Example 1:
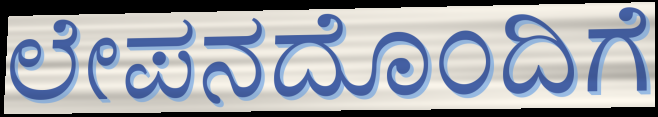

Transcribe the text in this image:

ಲೇಪನದೊಂದಿಗೆ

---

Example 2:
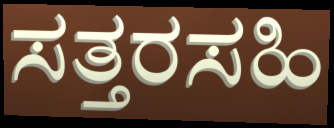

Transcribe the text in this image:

ಸತ್ತರಸಹಿ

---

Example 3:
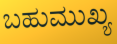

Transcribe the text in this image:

ಬಹುಮುಖ್ಯ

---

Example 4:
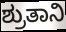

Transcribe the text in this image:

ಶ್ರುತಾನಿ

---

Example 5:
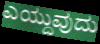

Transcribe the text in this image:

ಎಯ್ದುವುದು